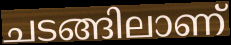
ചടങ്ങിലാണ്